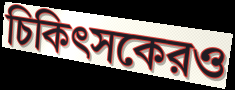
চিকিৎসকেরও